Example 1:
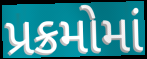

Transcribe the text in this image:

પ્રક્રમોમાં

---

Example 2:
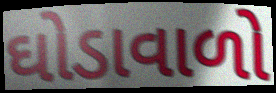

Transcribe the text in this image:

ઘોડાવાળો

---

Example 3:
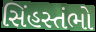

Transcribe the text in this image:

સિંહસ્તંભો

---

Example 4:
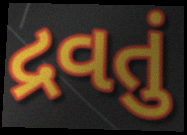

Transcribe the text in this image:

દ્રવતું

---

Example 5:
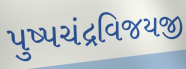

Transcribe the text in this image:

પુષ્પચંદ્રવિજયજી